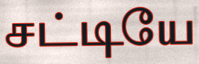
சட்டியே